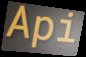
Api